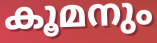
കൂമനും